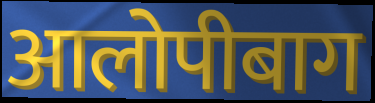
आलोपीबाग